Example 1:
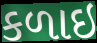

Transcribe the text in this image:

કળાઇ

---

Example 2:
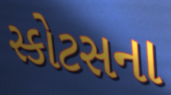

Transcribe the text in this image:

સ્કોટસના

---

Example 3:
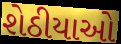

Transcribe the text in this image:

શેઠીયાઓ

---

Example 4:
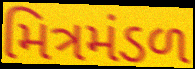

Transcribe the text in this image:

મિત્રમંડળ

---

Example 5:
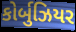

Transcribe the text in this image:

કોર્બુઝિયર